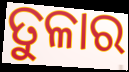
ତୁଳାର